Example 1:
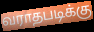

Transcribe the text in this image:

வராதபடிக்கு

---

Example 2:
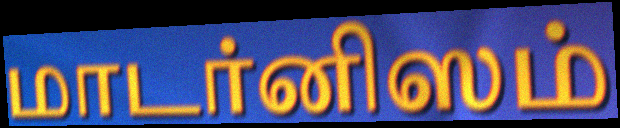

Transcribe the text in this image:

மாடர்னிஸம்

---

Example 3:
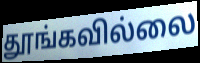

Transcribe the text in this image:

தூங்கவில்லை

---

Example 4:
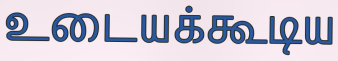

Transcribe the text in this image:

உடையக்கூடிய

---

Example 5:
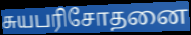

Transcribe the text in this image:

சுயபரிசோதனை